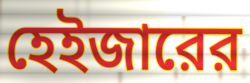
হেইজারের